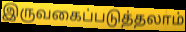
இருவகைப்படுத்தலாம்